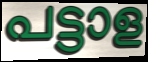
പട്ടാള